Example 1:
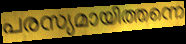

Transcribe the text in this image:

പരസ്യമായിത്തന്നെ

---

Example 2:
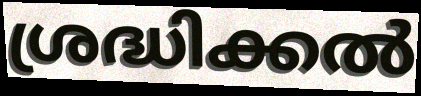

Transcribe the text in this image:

ശ്രദ്ധിക്കൽ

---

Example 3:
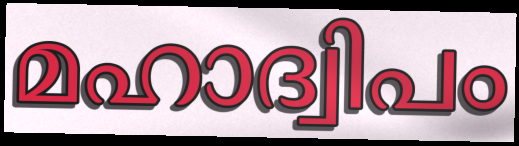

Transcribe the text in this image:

മഹാദ്വിപം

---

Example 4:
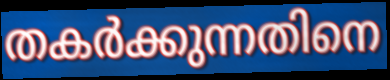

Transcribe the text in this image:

തകർക്കുന്നതിനെ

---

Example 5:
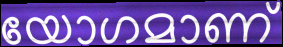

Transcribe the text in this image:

യോഗമാണ്